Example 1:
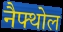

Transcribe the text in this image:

नैफ्थोल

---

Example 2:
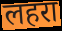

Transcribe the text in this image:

लहरा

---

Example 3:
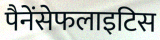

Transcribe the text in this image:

पैनेंसेफलाइटिस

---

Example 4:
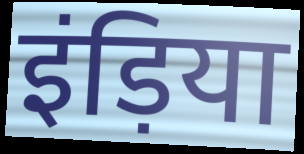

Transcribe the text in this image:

इंड़िया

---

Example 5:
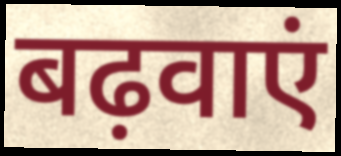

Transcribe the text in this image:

बढ़वाएं